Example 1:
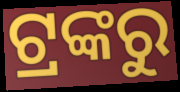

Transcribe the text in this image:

ଟ୍ରଙ୍କରୁ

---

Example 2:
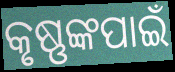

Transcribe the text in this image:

କୃଷ୍ଣଙ୍କପାଇଁ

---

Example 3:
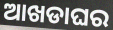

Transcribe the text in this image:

ଆଖଡାଘର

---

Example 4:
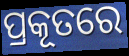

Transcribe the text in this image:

ପ୍ରକୂତରେ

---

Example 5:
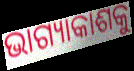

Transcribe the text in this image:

ଭାଗ୍ୟାକାଶକୁ